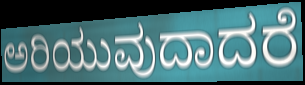
ಅರಿಯುವುದಾದರೆ